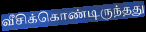
வீசிக்கொண்டிருந்தது